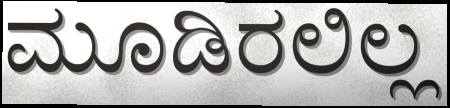
ಮೂಡಿರಲಿಲ್ಲ